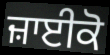
ਜ਼ਾਈਕੋ